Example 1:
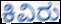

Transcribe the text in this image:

ಕಿವಿರು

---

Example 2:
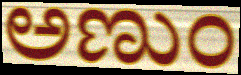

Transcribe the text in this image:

ಅಣುಂ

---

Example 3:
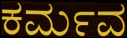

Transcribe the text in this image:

ಕರ್ಮವ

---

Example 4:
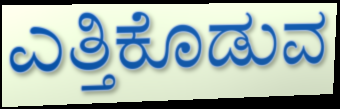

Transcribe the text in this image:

ಎತ್ತಿಕೊಡುವ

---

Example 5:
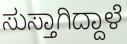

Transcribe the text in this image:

ಸುಸ್ತಾಗಿದ್ದಾಳೆ